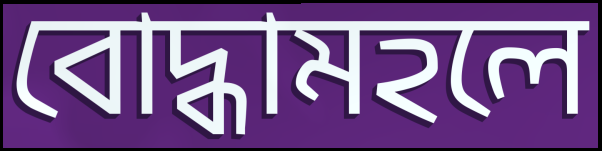
বোদ্ধামহলে